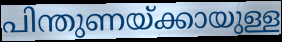
പിന്തുണയ്ക്കായുള്ള